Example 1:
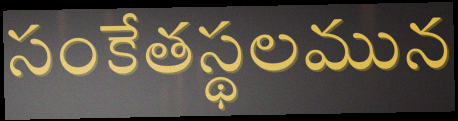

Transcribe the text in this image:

సంకేతస్థలమున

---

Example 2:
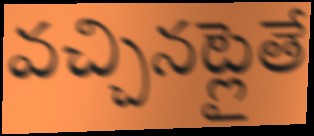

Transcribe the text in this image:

వచ్చినట్లైతే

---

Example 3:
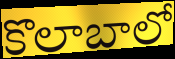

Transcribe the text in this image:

కొలాబాలో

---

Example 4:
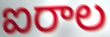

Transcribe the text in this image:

ఐరాల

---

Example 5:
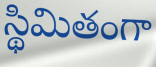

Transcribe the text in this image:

స్థిమితంగా